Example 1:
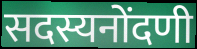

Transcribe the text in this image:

सदस्यनोंदणी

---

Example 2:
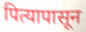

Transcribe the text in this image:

पित्यापासून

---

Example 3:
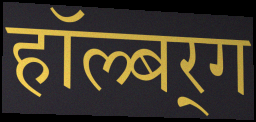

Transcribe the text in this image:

हॉल्बर्ग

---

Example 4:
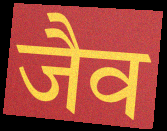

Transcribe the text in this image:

जैव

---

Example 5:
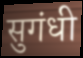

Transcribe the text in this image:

सुगंधी